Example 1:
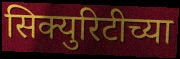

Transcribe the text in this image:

सिक्युरिटीच्या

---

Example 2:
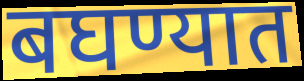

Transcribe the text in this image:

बघण्यात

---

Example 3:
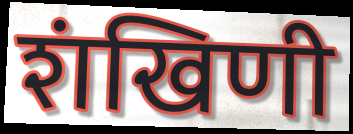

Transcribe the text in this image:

शंखिणी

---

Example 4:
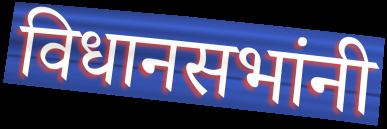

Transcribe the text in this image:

विधानसभांनी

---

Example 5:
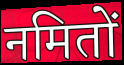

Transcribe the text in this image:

नमितों